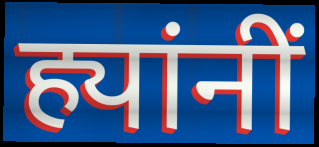
ह्यांनीं